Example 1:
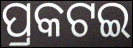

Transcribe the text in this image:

ପ୍ରକଟଇ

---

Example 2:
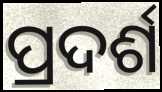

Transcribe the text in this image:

ପ୍ରଦର୍ଶ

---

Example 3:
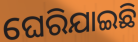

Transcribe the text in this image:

ଘେରିଯାଇଛି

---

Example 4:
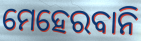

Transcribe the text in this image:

ମେହେରବାନି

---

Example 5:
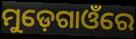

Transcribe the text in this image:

ମୁଡ଼େଗାଓଁରେ